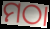
ମଠା